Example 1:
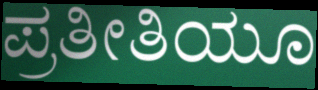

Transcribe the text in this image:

ಪ್ರತೀತಿಯೂ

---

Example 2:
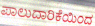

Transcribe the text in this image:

ಪಾಲುದಾರಿಕೆಯಿಂದ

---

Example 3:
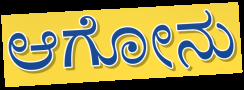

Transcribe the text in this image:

ಆಗೋನು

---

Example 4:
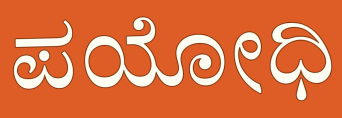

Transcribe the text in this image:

ಪಯೋಧಿ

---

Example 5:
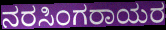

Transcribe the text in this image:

ನರಸಿಂಗರಾಯರ